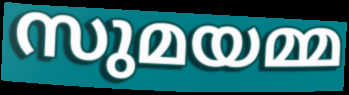
സുമയമ്മ